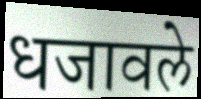
धजावले